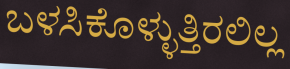
ಬಳಸಿಕೊಳ್ಳುತ್ತಿರಲಿಲ್ಲ